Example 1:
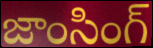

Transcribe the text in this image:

జాంసింగ్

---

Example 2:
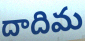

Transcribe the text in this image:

దాదిమ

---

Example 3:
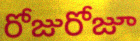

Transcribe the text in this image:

రోజురోజూ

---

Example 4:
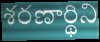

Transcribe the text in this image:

శరణార్థిని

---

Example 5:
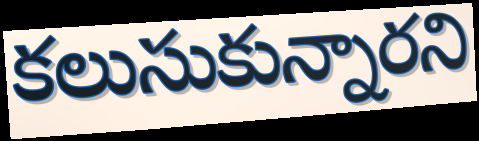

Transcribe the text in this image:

కలుసుకున్నారని